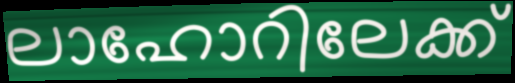
ലാഹോറിലേക്ക്